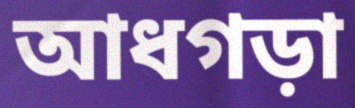
আধগড়া